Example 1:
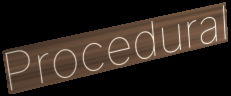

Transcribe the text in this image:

Procedural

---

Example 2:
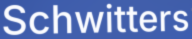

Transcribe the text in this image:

Schwitters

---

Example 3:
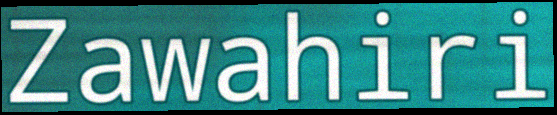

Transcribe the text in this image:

Zawahiri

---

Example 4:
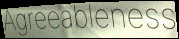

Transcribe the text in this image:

Agreeableness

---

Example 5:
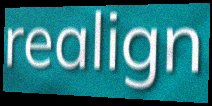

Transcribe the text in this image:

realign